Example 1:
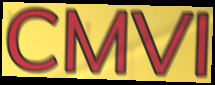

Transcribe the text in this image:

CMVI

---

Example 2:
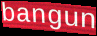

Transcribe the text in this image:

bangun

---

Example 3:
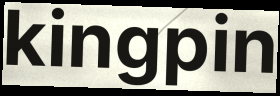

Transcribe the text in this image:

kingpin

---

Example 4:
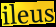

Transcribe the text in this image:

ileus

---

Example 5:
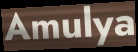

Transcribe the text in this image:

Amulya